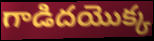
గాడిదయొక్క